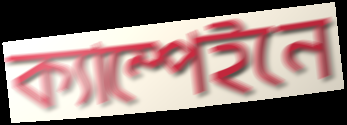
ক্যাম্পেইনে